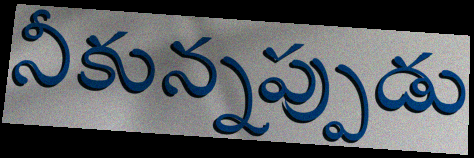
నీకున్నప్పుడు